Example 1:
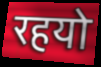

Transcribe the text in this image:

रहयो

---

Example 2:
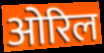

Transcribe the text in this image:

ओरिल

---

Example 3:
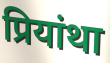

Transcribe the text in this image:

प्रियांथा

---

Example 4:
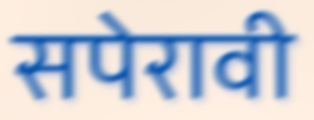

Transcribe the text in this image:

सपेरावी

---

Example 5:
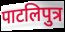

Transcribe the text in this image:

पाटलिपुत्र